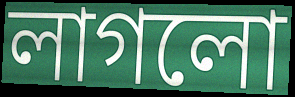
লাগলো